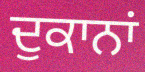
ਦੁਕਾਨਾਂ